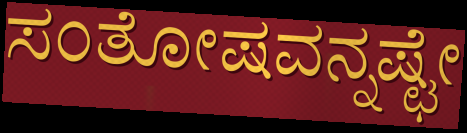
ಸಂತೋಷವನ್ನಷ್ಟೇ